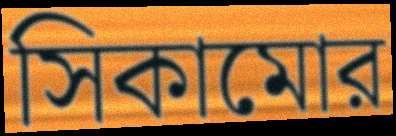
সিকামোর